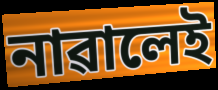
নাৱালেই